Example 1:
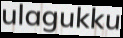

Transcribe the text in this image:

ulagukku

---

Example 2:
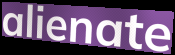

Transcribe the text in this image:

alienate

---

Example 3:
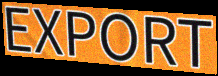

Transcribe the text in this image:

EXPORT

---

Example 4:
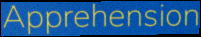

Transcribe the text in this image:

Apprehension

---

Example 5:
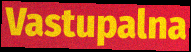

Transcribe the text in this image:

Vastupalna